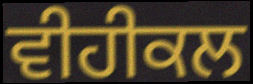
ਵੀਹੀਕਲ